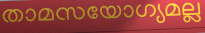
താമസയോഗ്യമല്ല